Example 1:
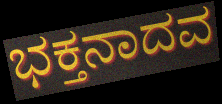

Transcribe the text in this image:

ಭಕ್ತನಾದವ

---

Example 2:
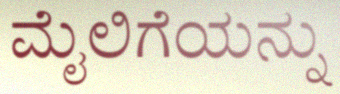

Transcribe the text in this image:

ಮೈಲಿಗೆಯನ್ನು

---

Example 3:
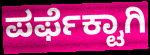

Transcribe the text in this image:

ಪರ್ಫೆಕ್ಟಾಗಿ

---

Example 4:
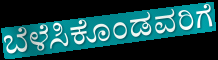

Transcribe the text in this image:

ಬೆಳೆಸಿಕೊಂಡವರಿಗೆ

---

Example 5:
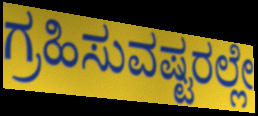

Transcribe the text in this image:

ಗ್ರಹಿಸುವಷ್ಟರಲ್ಲೇ